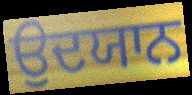
ਉਦਯਾਨ